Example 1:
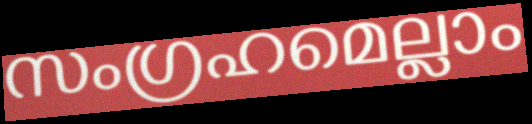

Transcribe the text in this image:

സംഗ്രഹമെല്ലാം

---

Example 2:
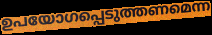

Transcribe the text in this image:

ഉപയോഗപ്പെടുത്തണമെന്ന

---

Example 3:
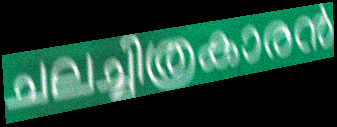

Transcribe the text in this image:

ചലച്ചിത്രകാരൻ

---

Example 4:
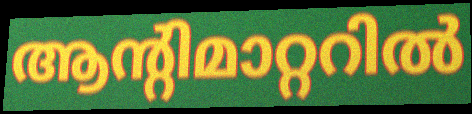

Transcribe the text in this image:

ആന്റിമാറ്ററിൽ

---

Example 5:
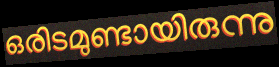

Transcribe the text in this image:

ഒരിടമുണ്ടായിരുന്നു